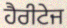
ਹੈਰੀਟੇਜ